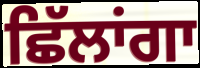
ਛਿੱਲਾਂਗਾ